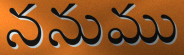
ననుము